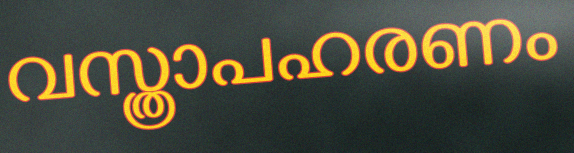
വസ്ത്രാപഹരണം